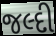
જલ્દી